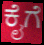
ಕೈಗೆ